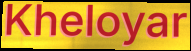
Kheloyar